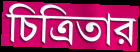
চিত্রিতার